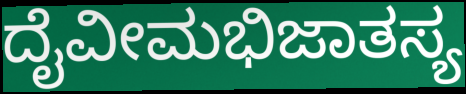
ದೈವೀಮಭಿಜಾತಸ್ಯ